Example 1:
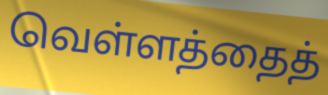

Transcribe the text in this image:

வெள்ளத்தைத்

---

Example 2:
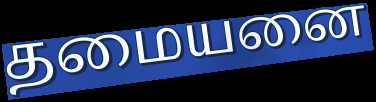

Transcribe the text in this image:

தமையனை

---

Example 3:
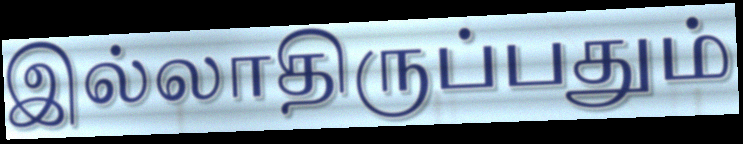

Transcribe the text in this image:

இல்லாதிருப்பதும்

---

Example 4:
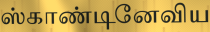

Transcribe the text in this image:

ஸ்காண்டினேவிய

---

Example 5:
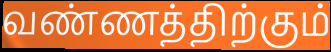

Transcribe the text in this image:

வண்ணத்திற்கும்